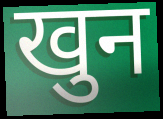
खुन